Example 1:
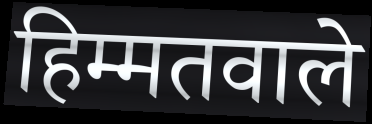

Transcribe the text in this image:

हिम्मतवाले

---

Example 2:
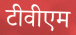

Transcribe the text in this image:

टीवीएम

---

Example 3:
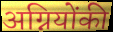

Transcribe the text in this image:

अग्नियोंकी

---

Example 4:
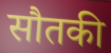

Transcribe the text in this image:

सौतकी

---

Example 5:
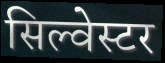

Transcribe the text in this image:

सिल्वेस्टर